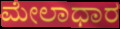
ಮೇಲಾಧಾರ